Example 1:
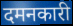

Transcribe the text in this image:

दमनकारी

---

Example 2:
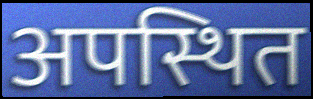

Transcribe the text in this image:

अपस्थित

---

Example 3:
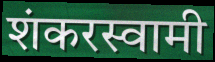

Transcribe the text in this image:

शंकरस्वामी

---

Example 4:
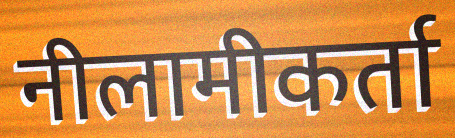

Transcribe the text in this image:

नीलामीकर्ता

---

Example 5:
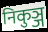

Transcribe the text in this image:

निकुञ्ज